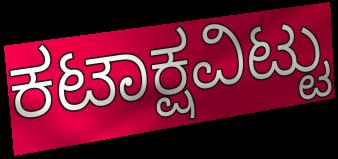
ಕಟಾಕ್ಷವಿಟ್ಟು